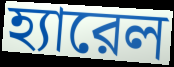
হ্যারেল